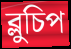
ব্লুচিপ